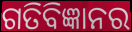
ଗତିବିଜ୍ଞାନର